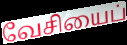
வேசியைப்